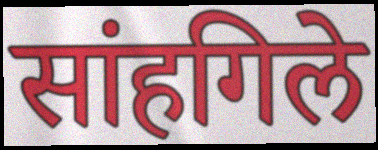
सांहगिले